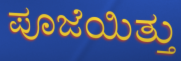
ಪೂಜೆಯಿತ್ತು